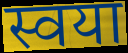
स्वया